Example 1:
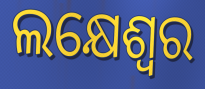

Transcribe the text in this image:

ଲକ୍ଷେଶ୍ଵର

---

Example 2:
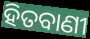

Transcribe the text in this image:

ହିତବାଣୀ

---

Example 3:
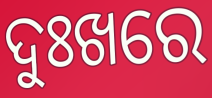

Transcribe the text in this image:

ଦୁଃଖରେ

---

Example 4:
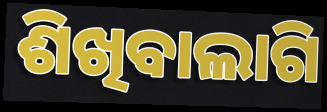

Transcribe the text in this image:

ଶିଖିବାଲାଗି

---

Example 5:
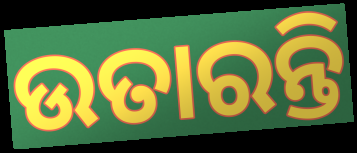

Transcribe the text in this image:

ଉତାରନ୍ତି